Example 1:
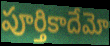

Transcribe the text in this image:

పూర్తికాదేమో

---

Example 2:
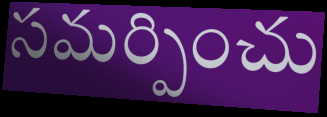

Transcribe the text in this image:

సమర్పించు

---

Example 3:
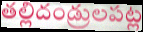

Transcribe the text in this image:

తల్లిదండ్రులపట్ల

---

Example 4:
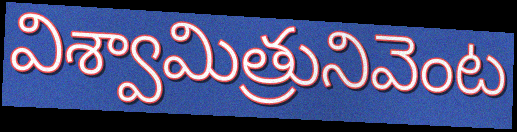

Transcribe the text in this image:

విశ్వామిత్రునివెంట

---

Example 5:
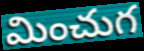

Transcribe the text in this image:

మించుగ